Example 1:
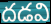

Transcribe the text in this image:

దడవి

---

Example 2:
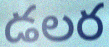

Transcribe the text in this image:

డలర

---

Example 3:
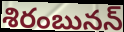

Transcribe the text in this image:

శిరంబునన్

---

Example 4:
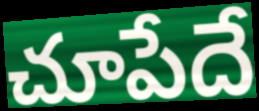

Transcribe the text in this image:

చూపేదే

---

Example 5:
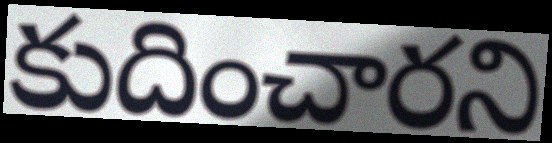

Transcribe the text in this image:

కుదించారని